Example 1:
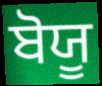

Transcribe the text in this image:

ਬੋਯੂ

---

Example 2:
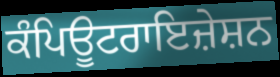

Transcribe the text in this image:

ਕੰਪਿਊਟਰਾਇਜ਼ੇਸ਼ਨ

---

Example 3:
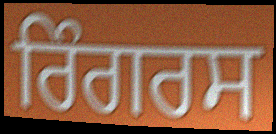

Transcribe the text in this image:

ਰਿੰਗਰਸ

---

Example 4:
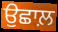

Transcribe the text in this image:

ਉਛਾਲ਼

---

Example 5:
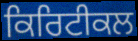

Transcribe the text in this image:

ਕਿਰਿਟੀਕਲ